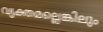
വ്യക്തമല്ലെങ്കിലും